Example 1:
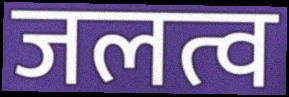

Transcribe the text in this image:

जलत्व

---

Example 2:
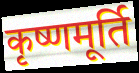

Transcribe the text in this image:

कृष्णमूर्ति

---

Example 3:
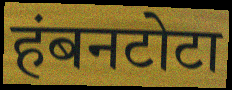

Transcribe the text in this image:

हंबनटोटा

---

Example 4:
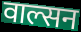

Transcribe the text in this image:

वाल्सन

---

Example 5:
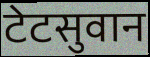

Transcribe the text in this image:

टेटसुवान